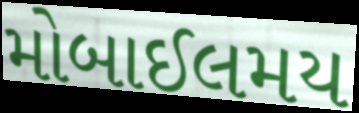
મોબાઈલમય